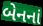
બેનનાં